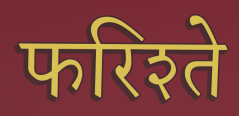
फरिश्ते